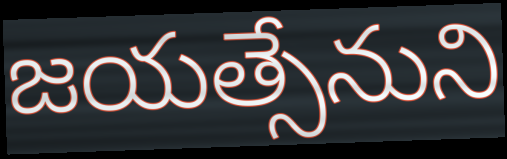
జయత్సేనుని